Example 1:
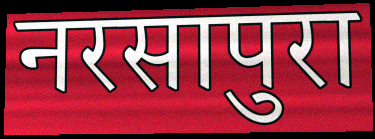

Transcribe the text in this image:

नरसापुरा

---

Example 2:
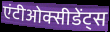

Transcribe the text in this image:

एंटीओक्सीडेंट्स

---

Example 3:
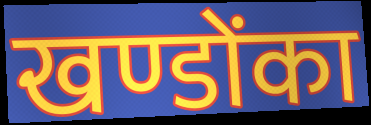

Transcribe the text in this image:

खण्डोंका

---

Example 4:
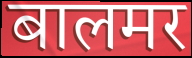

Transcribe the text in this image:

बालमर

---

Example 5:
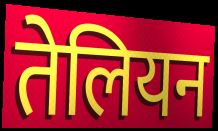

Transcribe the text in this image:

तेलियन